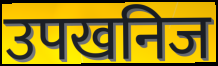
उपखनिज